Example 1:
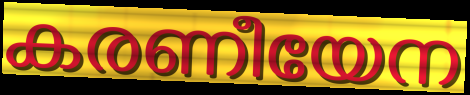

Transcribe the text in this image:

കരണീയേന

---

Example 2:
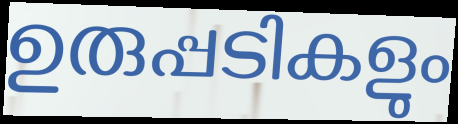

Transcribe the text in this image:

ഉരുപ്പടികളും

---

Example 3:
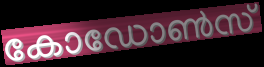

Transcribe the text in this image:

കോഡോൺസ്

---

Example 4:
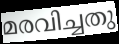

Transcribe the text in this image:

മരവിച്ചതു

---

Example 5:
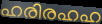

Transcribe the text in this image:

ഹരിരഹഹ